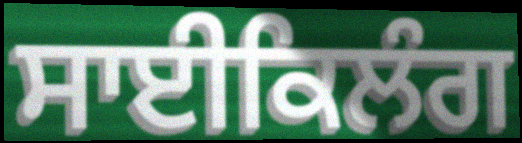
ਸਾਈਕਿਲੰਗ